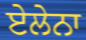
ਏਲੇਨਾ